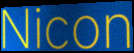
Nicon